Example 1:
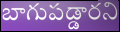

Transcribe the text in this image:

బాగుపడ్డారని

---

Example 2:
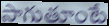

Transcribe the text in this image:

సాగుతూంటే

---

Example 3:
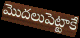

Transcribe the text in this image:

మొదలుపెట్టాకే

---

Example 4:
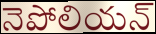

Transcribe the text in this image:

నెపోలియన్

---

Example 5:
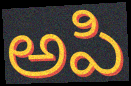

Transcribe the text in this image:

అపి